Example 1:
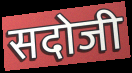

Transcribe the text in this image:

सदोजी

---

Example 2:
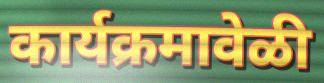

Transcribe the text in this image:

कार्यक्रमावेळी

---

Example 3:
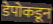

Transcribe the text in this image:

डेपोकडून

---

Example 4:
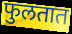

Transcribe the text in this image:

फुलतात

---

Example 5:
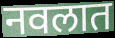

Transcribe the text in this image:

नवलात